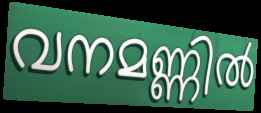
വനമണ്ണിൽ